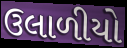
ઉલાળીયો